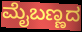
ಮೈಬಣ್ಣದ